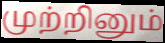
முற்றினும்